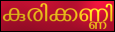
കുരിക്കണ്ണി